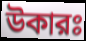
উকারঃ